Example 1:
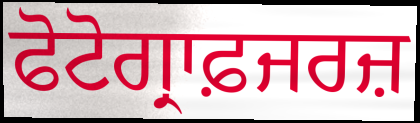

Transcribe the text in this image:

ਫੋਟੋਗ੍ਰਾਫ਼ਜਰਜ਼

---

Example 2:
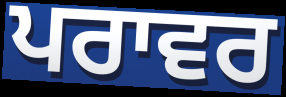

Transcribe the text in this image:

ਪਰਾਵਰ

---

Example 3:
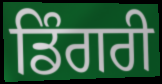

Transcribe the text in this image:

ਡਿੰਗਰੀ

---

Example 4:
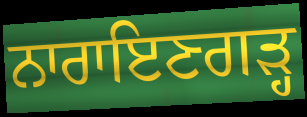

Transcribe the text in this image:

ਨਾਰਾਇਣਗੜ੍ਹ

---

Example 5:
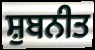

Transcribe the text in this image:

ਸ਼ੁਬਨੀਤ